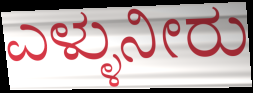
ಎಳ್ಳುನೀರು